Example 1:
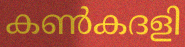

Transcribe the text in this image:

കൺകദളി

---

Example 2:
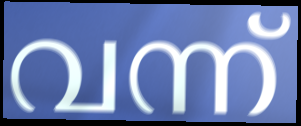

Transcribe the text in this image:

വന്ന്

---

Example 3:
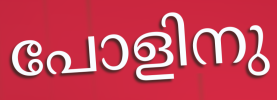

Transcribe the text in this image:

പോളിനു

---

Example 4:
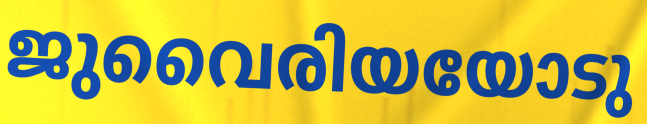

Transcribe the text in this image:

ജുവൈരിയയോടു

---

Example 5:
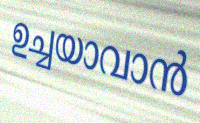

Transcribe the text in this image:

ഉച്ചയാവാൻ